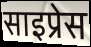
साइप्रेस